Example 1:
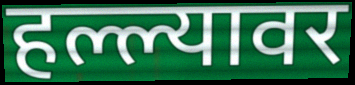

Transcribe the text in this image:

हल्ल्यावर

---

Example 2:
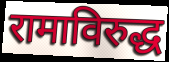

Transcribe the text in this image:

रामाविरुद्ध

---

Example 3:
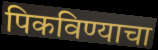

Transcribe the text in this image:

पिकविण्याचा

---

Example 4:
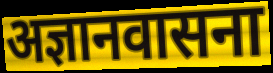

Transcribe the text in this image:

अज्ञानवासना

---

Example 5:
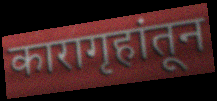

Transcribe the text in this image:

कारागृहांतून